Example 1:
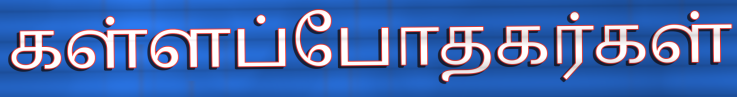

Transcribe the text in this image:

கள்ளப்போதகர்கள்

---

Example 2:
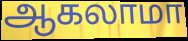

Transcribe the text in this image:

ஆகலாமா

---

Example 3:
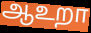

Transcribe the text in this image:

ஆஉறா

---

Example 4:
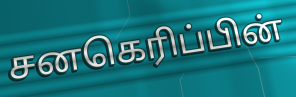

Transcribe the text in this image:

சனகெரிப்பின்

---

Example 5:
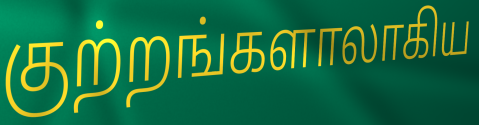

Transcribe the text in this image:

குற்றங்களாலாகிய